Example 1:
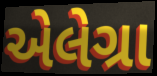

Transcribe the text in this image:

એલેગ્રા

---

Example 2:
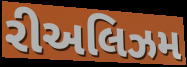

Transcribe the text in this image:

રીઅલિઝમ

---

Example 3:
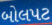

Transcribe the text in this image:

બોલપટ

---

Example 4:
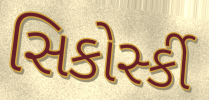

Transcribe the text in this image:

સિકોર્સ્કી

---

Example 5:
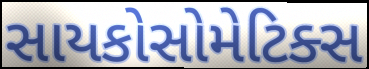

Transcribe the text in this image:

સાયકોસોમેટિક્સ